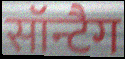
सॉन्टैग